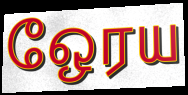
ஒேரய